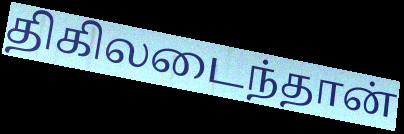
திகிலடைந்தான்